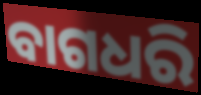
ବାଗଧରି